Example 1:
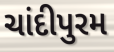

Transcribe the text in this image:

ચાંદીપુરમ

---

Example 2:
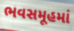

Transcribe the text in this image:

ભવસમૂહમાં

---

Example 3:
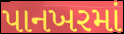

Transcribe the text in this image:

પાનખરમાં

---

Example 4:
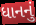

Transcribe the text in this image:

ધાનનું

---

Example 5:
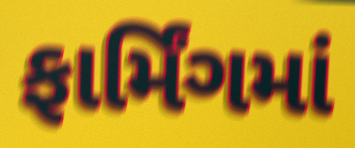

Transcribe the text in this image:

ફાર્મિંગમાં